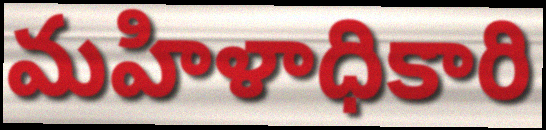
మహిళాధికారి